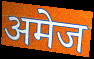
अमेज